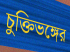
চুক্তিভঙ্গের